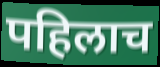
पहिलाच